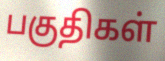
பகுதிகள்